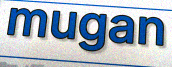
mugan